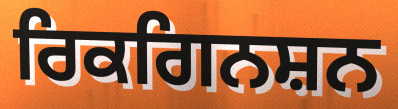
ਰਿਕਗਿਨਸ਼ਨ